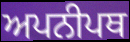
ਅਪਨੀਪਥ